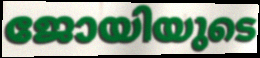
ജോയിയുടെ